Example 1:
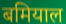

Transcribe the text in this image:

बमियाल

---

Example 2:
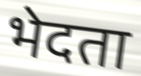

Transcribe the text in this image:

भेदता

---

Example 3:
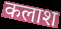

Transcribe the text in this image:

कलाश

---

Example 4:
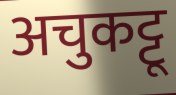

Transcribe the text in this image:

अचुकट्टू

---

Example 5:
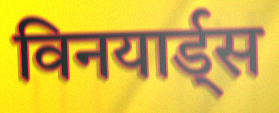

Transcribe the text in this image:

विनयार्ड्स